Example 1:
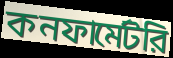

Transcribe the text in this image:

কনফার্মেটরি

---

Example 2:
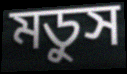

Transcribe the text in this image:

মডুস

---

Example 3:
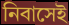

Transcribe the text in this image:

নিবাসেই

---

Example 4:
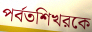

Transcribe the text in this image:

পর্বতশিখরকে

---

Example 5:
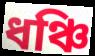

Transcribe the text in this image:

ধঞ্চি